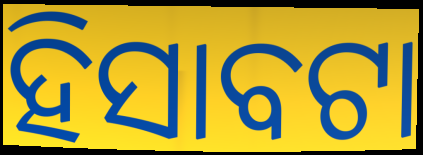
ହିସାବଟା